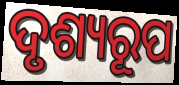
ଦୃଶ୍ୟରୂପ